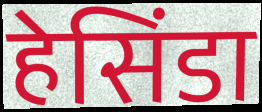
हेसिंडा